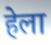
हेला